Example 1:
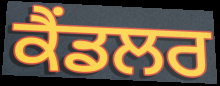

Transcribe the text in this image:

ਕੈਂਡਲਰ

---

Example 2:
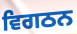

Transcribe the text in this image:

ਵਿਗਠਨ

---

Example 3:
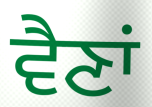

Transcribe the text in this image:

ਵੈਣਾਂ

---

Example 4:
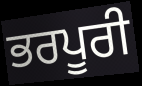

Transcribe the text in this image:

ਭਰਪੂਰੀ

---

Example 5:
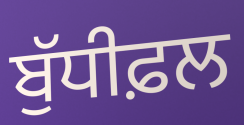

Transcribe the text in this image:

ਬੁੱਧੀਫ਼ਲ